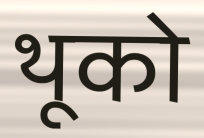
थूको